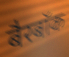
बैरबॉक